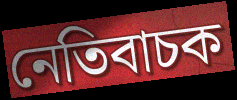
নেতিবাচক